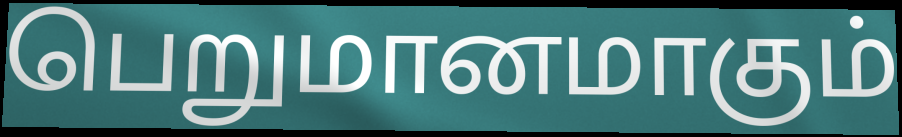
பெறுமானமாகும்